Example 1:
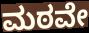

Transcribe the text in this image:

ಮಠವೇ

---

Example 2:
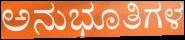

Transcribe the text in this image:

ಅನುಭೂತಿಗಳ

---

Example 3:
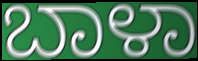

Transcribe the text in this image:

ಬಾಳಾ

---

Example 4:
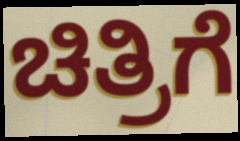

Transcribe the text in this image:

ಚಿತ್ರಿಗೆ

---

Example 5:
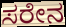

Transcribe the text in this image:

ಸರೇನ